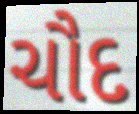
ચૌદ